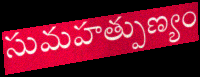
సుమహత్పుణ్యం